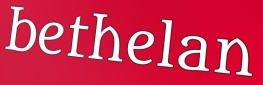
bethelan